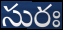
సురః